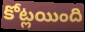
కోట్లయింది